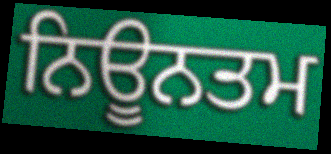
ਨਿਊਨਤਮ